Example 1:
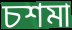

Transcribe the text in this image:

চশমা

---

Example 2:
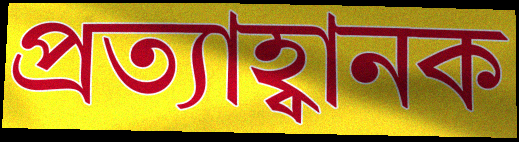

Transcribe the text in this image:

প্ৰত্যাহ্বানক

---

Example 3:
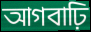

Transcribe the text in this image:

আগবাঢ়ি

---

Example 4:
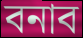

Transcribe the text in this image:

বনাব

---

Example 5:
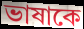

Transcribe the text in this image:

ভাষাকে